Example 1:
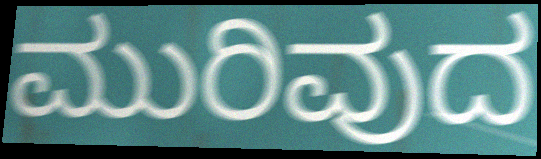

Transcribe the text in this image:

ಮುರಿವುದ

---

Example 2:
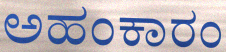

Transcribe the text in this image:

ಅಹಂಕಾರಂ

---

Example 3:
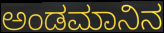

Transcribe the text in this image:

ಅಂಡಮಾನಿನ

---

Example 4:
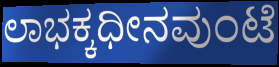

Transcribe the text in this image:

ಲಾಭಕ್ಕಧೀನವುಂಟೆ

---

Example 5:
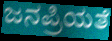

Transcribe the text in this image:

ಜನಪ್ರಿಯತೆ